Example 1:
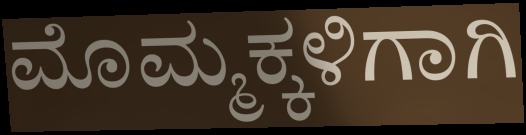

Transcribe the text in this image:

ಮೊಮ್ಮಕ್ಕಳಿಗಾಗಿ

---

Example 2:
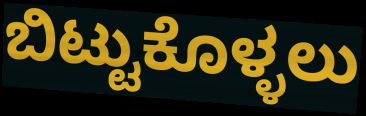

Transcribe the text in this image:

ಬಿಟ್ಟುಕೊಳ್ಳಲು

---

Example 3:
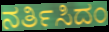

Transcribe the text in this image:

ನರ್ತಿಸಿದಂ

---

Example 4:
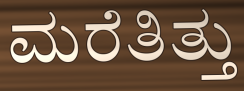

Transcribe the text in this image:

ಮರೆತಿತ್ತು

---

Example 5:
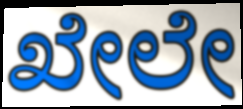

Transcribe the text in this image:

ಖೇಲೇ